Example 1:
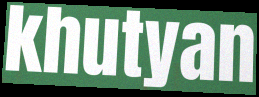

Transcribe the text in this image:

khutyan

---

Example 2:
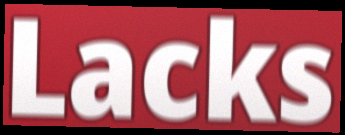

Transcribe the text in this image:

Lacks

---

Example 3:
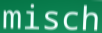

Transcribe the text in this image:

misch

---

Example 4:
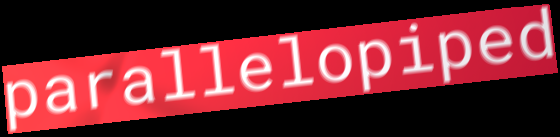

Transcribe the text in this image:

parallelopiped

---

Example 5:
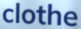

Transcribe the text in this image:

clothe